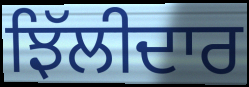
ਝਿੱਲੀਦਾਰ